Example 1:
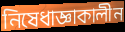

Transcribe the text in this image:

নিষেধাজ্ঞাকালীন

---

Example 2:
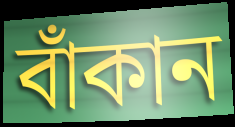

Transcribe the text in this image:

বাঁকান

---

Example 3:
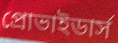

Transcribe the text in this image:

প্রোভাইডার্স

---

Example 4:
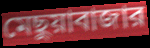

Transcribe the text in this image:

মেছুয়াবাজার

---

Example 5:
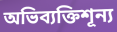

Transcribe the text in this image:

অভিব্যক্তিশূন্য